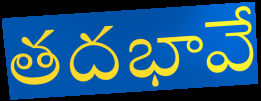
తదభావే